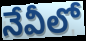
నేవీలో